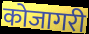
कोजागरी